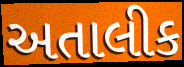
અતાલીક